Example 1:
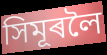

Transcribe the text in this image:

সিমূৰলৈ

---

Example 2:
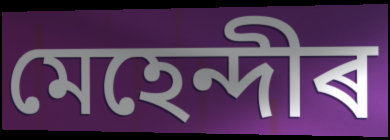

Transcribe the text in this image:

মেহেন্দীৰ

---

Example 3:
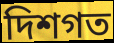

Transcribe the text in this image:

দিশগত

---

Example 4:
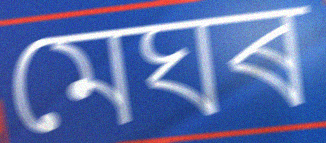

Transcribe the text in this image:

মেঘৰ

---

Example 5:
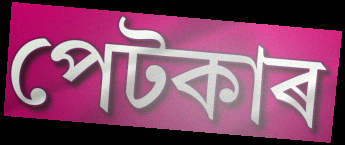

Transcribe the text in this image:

পেটকাৰ